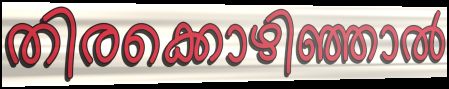
തിരക്കൊഴിഞ്ഞാൽ